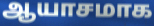
ஆயாசமாக